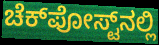
ಚೆಕ್‌ಪೋಸ್ಟ್‌ನಲ್ಲಿ